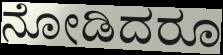
ನೋಡಿದರೂ